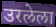
उरलेला